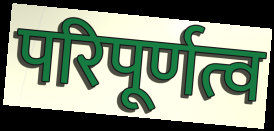
परिपूर्णत्व